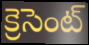
క్రెసెంట్